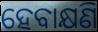
ହେବାକ୍ଷଣି